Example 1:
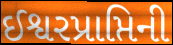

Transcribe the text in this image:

ઈશ્વરપ્રાપ્તિની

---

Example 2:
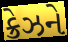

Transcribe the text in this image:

ક્રેઝને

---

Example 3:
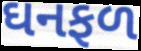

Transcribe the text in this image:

ઘનફળ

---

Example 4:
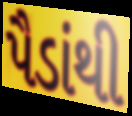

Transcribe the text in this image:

પૈડાંથી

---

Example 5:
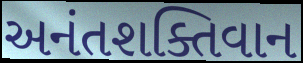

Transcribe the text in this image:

અનંતશક્તિવાન